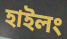
হাইলং